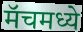
मॅचमध्ये